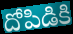
దోపిడికి